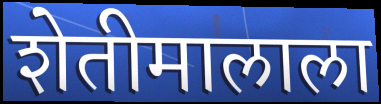
शेतीमालाला